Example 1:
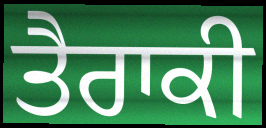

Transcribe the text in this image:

ਤੈਰਾਕੀ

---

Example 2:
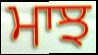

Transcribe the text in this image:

ਮਾਝ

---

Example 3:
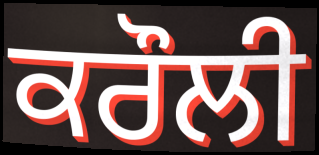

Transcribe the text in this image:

ਕਰੌਲੀ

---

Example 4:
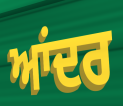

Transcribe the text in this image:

ਆਂਦਰ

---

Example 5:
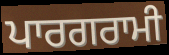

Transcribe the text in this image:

ਪਾਰਗਰਾਮੀ